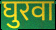
घुरवा